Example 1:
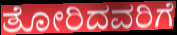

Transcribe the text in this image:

ತೋರಿದವರಿಗೆ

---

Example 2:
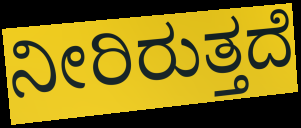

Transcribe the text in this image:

ನೀರಿರುತ್ತದೆ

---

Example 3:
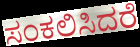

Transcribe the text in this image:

ಸಂಕಲಿಸಿದರೆ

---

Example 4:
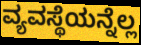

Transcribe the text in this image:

ವ್ಯವಸ್ಥೆಯನ್ನೆಲ್ಲ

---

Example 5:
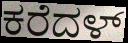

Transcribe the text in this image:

ಕರೆದಳ್